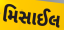
મિસાઈલ